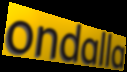
ondalla